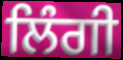
ਲਿੰਗੀ